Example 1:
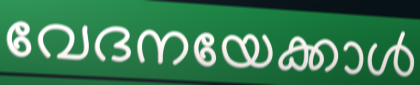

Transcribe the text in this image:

വേദനയേക്കാൾ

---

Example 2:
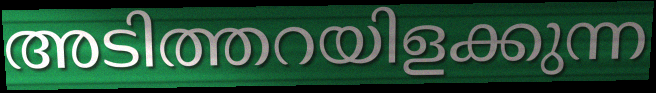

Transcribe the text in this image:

അടിത്തറയിളക്കുന്ന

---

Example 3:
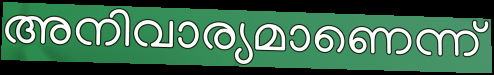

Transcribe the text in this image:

അനിവാര്യമാണെന്ന്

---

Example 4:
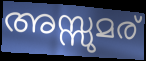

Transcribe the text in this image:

അസ്സുമര്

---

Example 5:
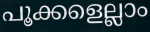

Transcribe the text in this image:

പൂക്കളെല്ലാം